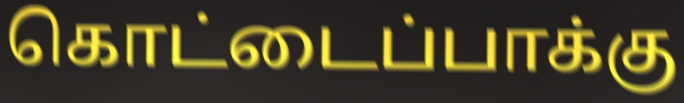
கொட்டைப்பாக்கு